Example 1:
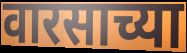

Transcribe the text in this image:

वारसाच्या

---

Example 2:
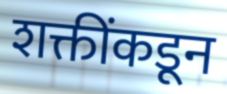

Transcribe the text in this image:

शक्तींकडून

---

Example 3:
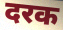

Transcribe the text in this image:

दरक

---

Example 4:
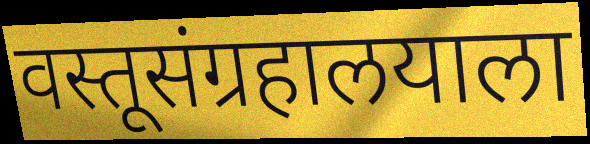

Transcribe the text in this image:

वस्तूसंग्रहालयाला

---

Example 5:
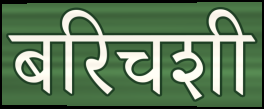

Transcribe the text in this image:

बरिचशी